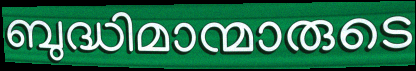
ബുദ്ധിമാന്മാരുടെ